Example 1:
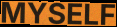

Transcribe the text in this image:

MYSELF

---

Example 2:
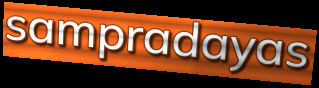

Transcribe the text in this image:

sampradayas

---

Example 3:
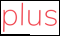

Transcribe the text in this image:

plus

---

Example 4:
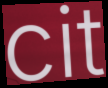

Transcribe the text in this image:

cit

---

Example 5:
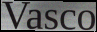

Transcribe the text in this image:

Vasco